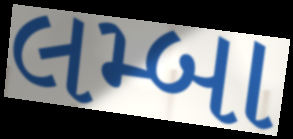
લમ્બા